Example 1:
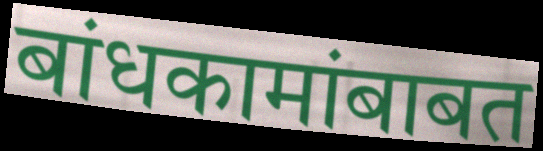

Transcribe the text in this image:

बांधकामांबाबत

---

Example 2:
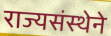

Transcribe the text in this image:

राज्यसंस्थेने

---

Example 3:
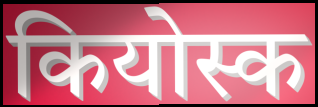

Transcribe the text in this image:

कियोस्क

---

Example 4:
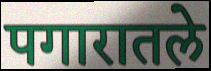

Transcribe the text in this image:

पगारातले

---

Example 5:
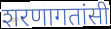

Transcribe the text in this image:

शरणागतांसी